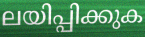
ലയിപ്പിക്കുക